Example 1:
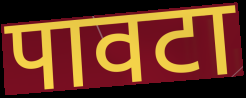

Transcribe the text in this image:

पावटा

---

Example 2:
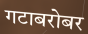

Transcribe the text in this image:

गटाबरोबर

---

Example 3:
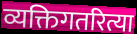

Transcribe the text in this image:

व्यक्तिगतरित्या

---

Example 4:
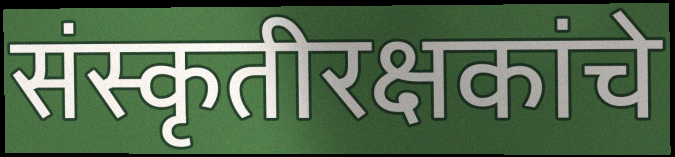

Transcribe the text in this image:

संस्कृतीरक्षकांचे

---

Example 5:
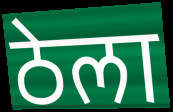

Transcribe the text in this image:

ठेला